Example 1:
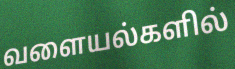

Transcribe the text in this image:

வளையல்களில்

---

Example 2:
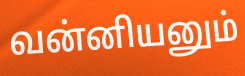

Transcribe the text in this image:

வன்னியனும்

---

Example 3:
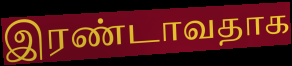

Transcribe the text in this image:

இரண்டாவதாக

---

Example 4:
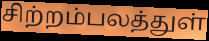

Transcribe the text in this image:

சிற்றம்பலத்துள்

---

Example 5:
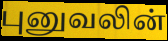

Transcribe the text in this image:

புனுவலின்